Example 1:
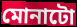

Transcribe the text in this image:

মোনাটো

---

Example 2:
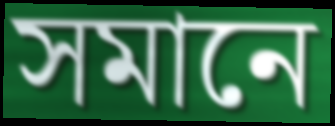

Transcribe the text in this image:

সমানে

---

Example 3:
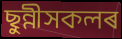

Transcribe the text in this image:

ছুন্নীসকলৰ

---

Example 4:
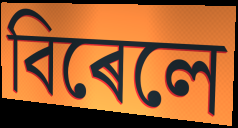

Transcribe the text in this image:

বিৰেলে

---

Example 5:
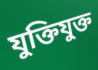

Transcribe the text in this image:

যুক্তিযুক্ত